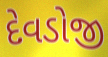
દેવડોજી